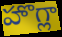
హొగ్లా